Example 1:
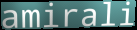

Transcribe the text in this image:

amirali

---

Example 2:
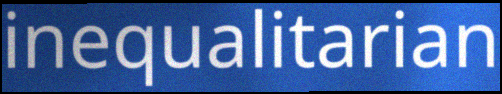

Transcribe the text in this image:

inequalitarian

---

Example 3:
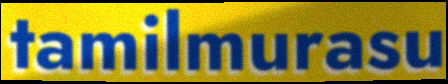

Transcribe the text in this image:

tamilmurasu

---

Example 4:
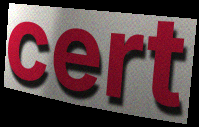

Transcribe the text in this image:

cert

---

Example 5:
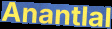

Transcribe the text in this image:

Anantlal